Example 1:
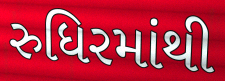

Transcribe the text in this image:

રુધિરમાંથી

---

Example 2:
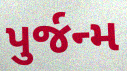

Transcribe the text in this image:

પુર્જન્મ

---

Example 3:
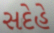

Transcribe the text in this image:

સદેહે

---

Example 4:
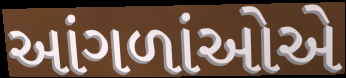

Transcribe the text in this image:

આંગળાંઓએ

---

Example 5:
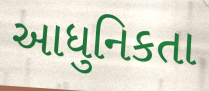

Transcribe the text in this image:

આધુનિકતા